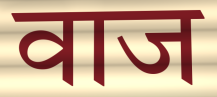
वाज